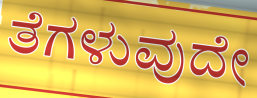
ತೆಗಳುವುದೇ